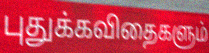
புதுக்கவிதைகளும்